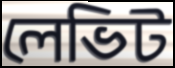
লেভিট